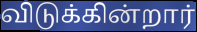
விடுக்கின்றார்